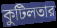
কুটিলতার